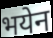
भयेन